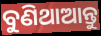
ବୁଣିଥାଆନ୍ତୁ